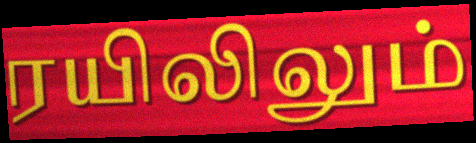
ரயிலிலும்